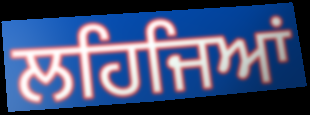
ਲਹਿਜਿਆਂ